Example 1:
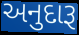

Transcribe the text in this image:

અનુદારૂ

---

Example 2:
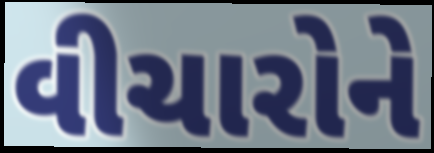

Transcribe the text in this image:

વીચારોને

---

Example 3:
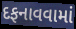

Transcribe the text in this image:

દફનાવવામાં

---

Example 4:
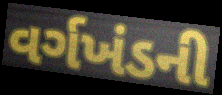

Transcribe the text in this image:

વર્ગખંડની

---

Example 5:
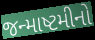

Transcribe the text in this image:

જન્માષ્ટમીનો